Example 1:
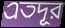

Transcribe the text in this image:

এতদূর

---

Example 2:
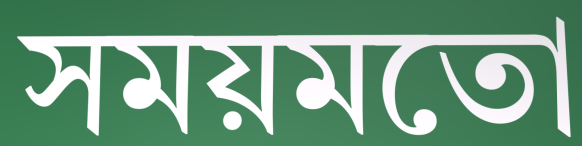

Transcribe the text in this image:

সময়মতো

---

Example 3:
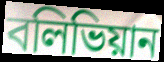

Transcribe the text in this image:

বলিভিয়ান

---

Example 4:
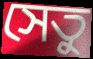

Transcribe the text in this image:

সেতু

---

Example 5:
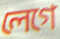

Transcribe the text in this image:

লেগে